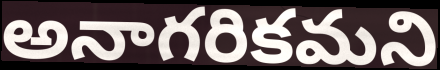
అనాగరికమని